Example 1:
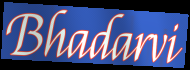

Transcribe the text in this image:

Bhadarvi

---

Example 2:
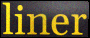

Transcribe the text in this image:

liner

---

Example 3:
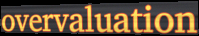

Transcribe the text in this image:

overvaluation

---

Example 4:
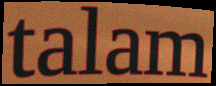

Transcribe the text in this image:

talam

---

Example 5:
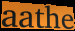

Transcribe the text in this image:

aathe